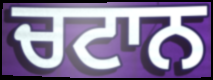
ਚਟਾਨ